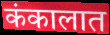
कंकालात